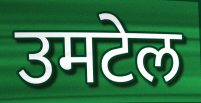
उमटेल